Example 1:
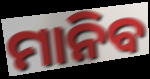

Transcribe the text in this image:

ମାନିବ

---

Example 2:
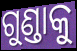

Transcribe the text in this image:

ଗୁଣ୍ଡାକୁ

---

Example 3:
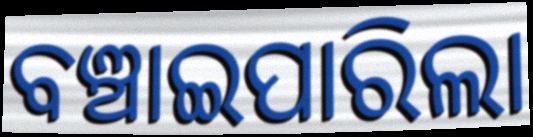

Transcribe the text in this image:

ବଞ୍ଚାଇପାରିଲା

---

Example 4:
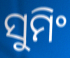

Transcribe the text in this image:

ସୁମିଂ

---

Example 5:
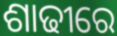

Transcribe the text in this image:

ଶାଢୀରେ